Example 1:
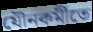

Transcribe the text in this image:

যৌনকর্মীতে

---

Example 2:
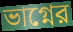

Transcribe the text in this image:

ভাগ্নের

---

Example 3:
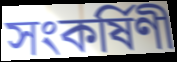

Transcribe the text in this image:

সংকর্ষিণী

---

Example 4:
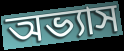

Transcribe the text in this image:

অভ্যাস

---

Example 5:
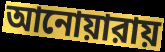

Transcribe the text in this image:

আনোয়ারায়